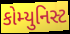
કોમ્યુનિસ્ટ